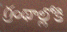
గ్రంథాల్లోకి